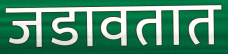
जडावतात